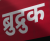
ब्रुद्रुक